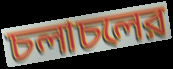
চলাচলের